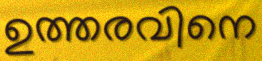
ഉത്തരവിനെ